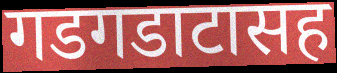
गडगडाटासह